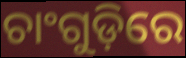
ଚାଂଗୁଡ଼ିରେ